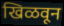
खिळवून